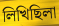
লিখিছিলা